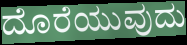
ದೊರೆಯುವುದು